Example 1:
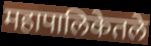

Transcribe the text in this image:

महापालिकेतले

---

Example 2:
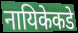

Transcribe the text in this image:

नायिकेकडे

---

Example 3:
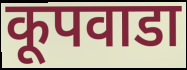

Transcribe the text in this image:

कूपवाडा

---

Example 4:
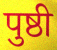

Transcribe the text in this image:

पुष्ठी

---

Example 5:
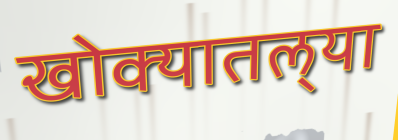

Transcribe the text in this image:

खोक्यातल्या